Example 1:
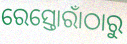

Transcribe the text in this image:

ରେସ୍ତୋରାଁଠାରୁ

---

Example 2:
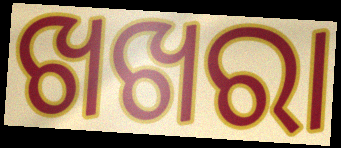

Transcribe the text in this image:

ଖଖରା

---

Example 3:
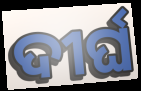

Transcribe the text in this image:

ଦୀର୍ଘ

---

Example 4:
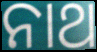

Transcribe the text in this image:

ନାଥ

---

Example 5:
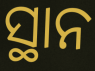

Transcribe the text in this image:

ସ୍ଥାନ